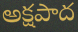
అక్షపాద